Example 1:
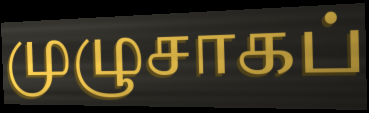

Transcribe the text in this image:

முழுசாகப்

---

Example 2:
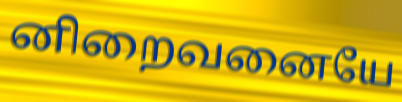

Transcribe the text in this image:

னிறைவனையே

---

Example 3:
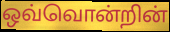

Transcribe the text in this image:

ஒவ்வொன்றின்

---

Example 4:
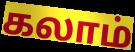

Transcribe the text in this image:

கலாம்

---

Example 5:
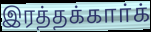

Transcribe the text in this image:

இரத்தக்கார்க்